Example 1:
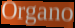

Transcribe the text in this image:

Organo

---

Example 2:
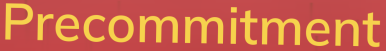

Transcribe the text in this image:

Precommitment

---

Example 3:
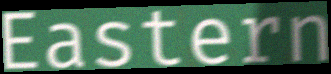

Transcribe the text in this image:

Eastern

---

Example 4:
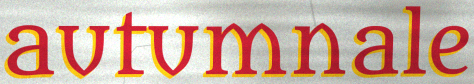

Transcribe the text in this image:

autumnale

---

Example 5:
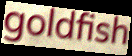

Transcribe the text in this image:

goldfish